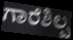
ಗಾರೆಶಿಲ್ಪ